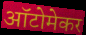
ऑटोमेकर